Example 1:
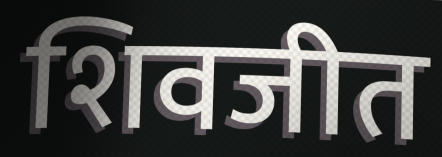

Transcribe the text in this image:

शिवजीत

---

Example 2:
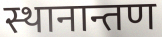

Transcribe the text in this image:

स्थानान्तण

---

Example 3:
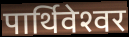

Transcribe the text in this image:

पार्थिवेश्वर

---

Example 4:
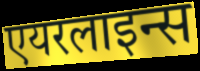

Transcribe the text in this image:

एयरलाइन्स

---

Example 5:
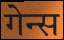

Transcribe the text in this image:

गेन्स